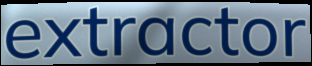
extractor